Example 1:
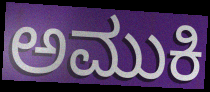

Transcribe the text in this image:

ಅಮುಕಿ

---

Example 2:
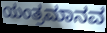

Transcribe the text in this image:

ಯಂತ್ರಮಾನವ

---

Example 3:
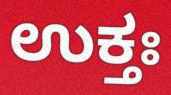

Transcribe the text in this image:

ಉಕ್ತಃ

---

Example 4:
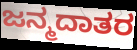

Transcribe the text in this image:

ಜನ್ಮದಾತರ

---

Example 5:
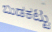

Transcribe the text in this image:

ಬುಡಕಟ್ಟು